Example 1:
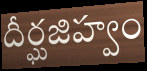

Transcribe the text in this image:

దీర్ఘజిహ్వం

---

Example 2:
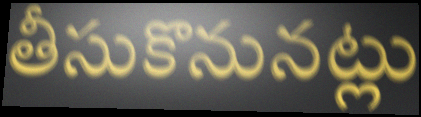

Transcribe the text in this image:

తీసుకొనునట్లు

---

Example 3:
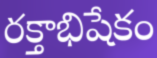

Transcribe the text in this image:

రక్తాభిషేకం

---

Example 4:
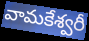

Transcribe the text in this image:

వామకేశ్వరీ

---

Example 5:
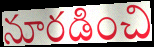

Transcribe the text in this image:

నూరడించి